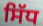
ਸਿੱਧ